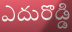
ఎదురొడ్డి